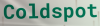
Coldspot